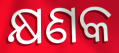
କ୍ଷଣକ